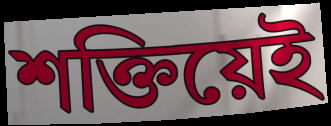
শক্তিয়েই